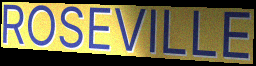
ROSEVILLE